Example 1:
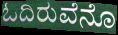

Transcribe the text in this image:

ಓದಿರುವೆನೊ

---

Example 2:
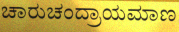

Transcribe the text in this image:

ಚಾರುಚಂದ್ರಾಯಮಾಣ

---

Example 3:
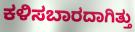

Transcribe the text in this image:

ಕಳಿಸಬಾರದಾಗಿತ್ತು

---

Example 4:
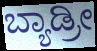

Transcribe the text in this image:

ಬ್ಯಾಡ್ರೀ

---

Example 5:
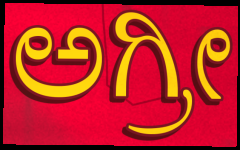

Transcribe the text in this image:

ಅಗ್ರೀ